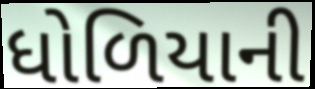
ધોળિયાની